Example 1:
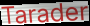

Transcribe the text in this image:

Tarader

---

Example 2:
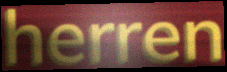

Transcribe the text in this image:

herren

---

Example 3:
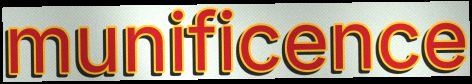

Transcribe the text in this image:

munificence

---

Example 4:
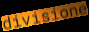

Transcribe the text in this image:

divisione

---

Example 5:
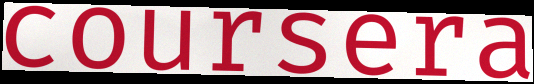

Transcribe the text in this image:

coursera